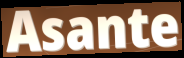
Asante